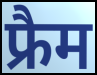
फ्रैम